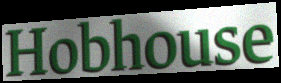
Hobhouse